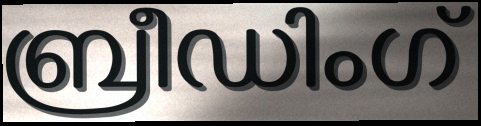
ബ്രീഡിംഗ്